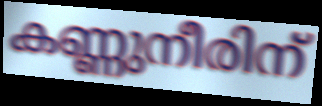
കണ്ണുനീരിന്